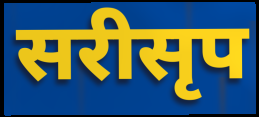
सरीसृप